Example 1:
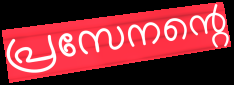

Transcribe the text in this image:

പ്രസേനന്റെ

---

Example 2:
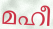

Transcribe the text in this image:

മഹീ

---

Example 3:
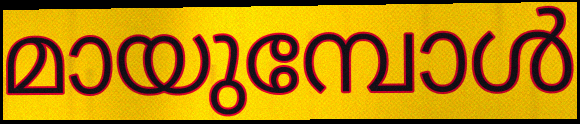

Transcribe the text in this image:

മായുമ്പോൾ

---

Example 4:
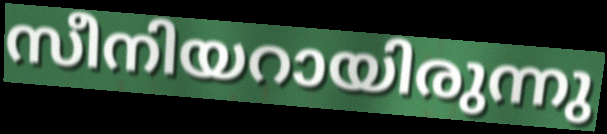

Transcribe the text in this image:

സീനിയറായിരുന്നു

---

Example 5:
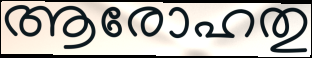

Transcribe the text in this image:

ആരോഹതു